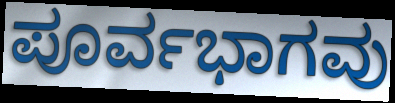
ಪೂರ್ವಭಾಗವು